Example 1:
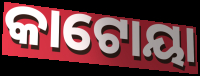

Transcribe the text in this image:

କାଟୋୟା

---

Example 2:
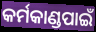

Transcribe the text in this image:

କର୍ମକାଣ୍ଡପାଇଁ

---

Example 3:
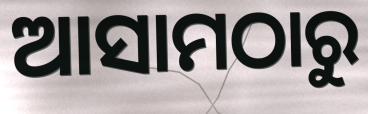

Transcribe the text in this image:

ଆସାମଠାରୁ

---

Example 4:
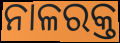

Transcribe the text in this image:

ନାଳରକ୍ତ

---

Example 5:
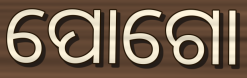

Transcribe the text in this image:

ପୋଗୋ